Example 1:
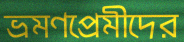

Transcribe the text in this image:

ভ্রমণপ্রেমীদের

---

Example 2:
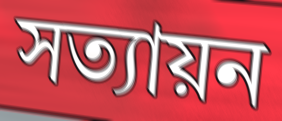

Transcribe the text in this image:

সত্যায়ন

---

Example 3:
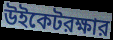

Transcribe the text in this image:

উইকেটরক্ষার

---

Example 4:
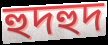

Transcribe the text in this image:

হুদহুদ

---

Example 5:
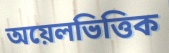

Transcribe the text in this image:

অয়েলভিত্তিক